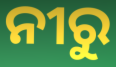
ନୀରୁ